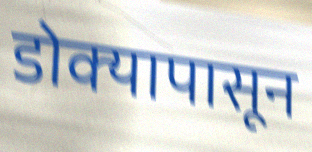
डोक्यापासून